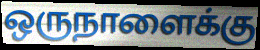
ஒருநாளைக்கு